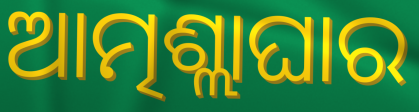
ଆତ୍ମଶ୍ଲାଘାର